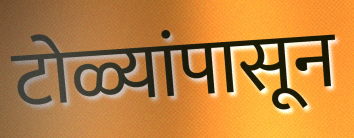
टोळ्यांपासून